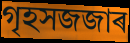
গৃহসজজাৰ